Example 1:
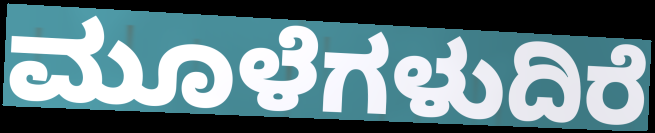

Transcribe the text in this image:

ಮೂಳೆಗಳುದಿರೆ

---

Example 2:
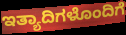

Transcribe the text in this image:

ಇತ್ಯಾದಿಗಳೊಂದಿಗೆ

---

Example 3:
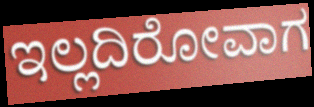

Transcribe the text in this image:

ಇಲ್ಲದಿರೋವಾಗ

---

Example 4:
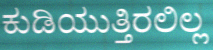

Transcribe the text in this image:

ಕುಡಿಯುತ್ತಿರಲಿಲ್ಲ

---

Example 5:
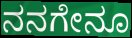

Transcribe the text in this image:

ನನಗೇನೂ